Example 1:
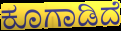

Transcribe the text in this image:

ಕೂಗಾಡಿದೆ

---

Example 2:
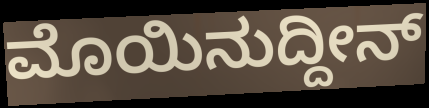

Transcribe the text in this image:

ಮೊಯಿನುದ್ದೀನ್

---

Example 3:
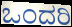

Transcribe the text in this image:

ಒಂದರಿ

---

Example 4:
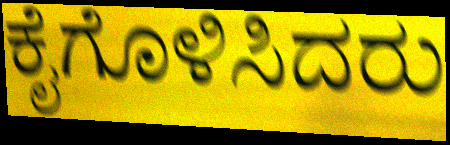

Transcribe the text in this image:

ಕೈಗೊಳಿಸಿದರು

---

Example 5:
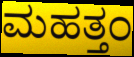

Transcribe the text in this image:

ಮಹತ್ತಂ